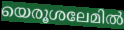
യെരൂശലേമിൽ